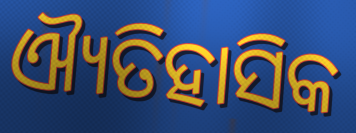
ଐ୍ୟତିହାସିକ